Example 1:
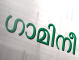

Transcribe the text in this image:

ഗാമിനീ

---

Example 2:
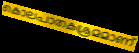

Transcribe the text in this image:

കൊലപാതകശ്രമമാണ്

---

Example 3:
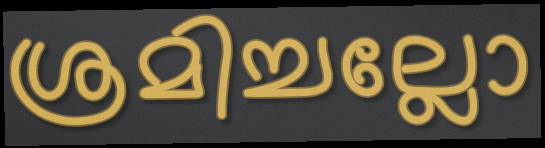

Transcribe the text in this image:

ശ്രമിച്ചല്ലോ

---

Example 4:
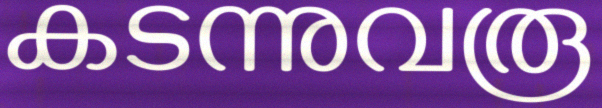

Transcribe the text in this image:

കടന്നുവരൂ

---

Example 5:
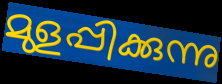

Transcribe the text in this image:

മുളപ്പിക്കുന്നു